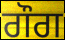
ਗੌਗ